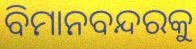
ବିମାନବନ୍ଦରକୁ